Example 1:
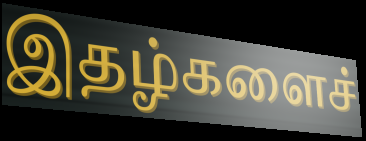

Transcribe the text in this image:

இதழ்களைச்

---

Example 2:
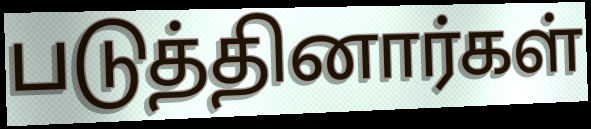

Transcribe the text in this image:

படுத்தினார்கள்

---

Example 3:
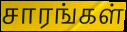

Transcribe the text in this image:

சாரங்கள்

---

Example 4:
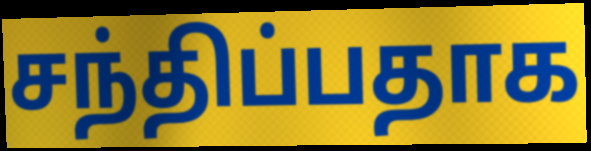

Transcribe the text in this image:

சந்திப்பதாக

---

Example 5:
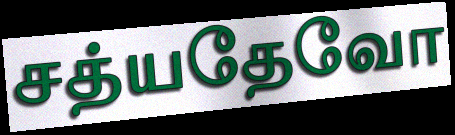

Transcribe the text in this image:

சத்யதேவோ